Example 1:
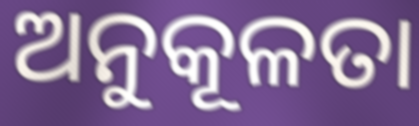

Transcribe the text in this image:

ଅନୁକୂଳତା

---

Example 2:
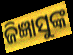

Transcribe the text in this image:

ଜିଜ୍ଞାସୁଙ୍କ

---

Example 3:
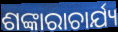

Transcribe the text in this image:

ଶଙ୍କାରାଚାର୍ଯ୍ୟ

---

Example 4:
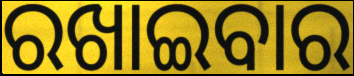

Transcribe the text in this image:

ରଖାଇବାର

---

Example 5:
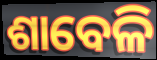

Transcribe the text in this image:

ଶାବେଳି